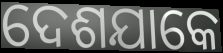
ଦେଶଯାକେ